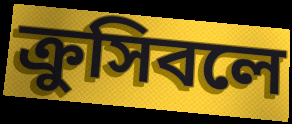
ক্রুসিবলে